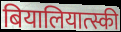
बियालियात्स्की